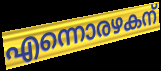
എന്നൊരഴകന്